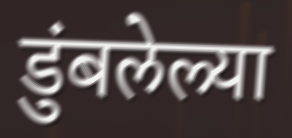
डुंबलेल्या